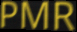
PMR